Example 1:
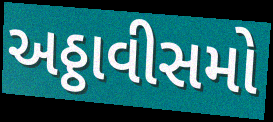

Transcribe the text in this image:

અઠ્ઠાવીસમો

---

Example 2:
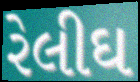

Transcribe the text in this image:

રેલીઘ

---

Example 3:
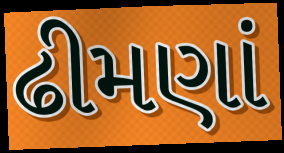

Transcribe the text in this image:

ઢીમણાં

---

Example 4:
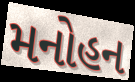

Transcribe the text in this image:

મનોહન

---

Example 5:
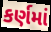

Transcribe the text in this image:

કર્ણમાં